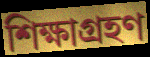
শিক্ষাগ্রহণ